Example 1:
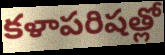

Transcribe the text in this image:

కళాపరిషత్లో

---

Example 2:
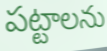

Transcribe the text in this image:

పట్టాలను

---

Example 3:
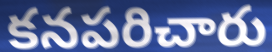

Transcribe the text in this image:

కనపరిచారు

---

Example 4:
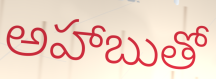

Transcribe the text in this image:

అహాబుతో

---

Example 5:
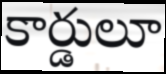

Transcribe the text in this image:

కార్డులూ